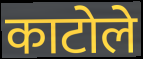
काटोले